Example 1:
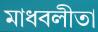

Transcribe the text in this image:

মাধবলীতা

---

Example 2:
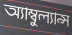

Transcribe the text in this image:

অ্যাম্বুল্যান্স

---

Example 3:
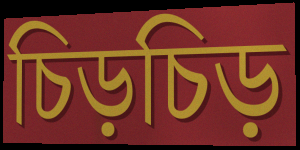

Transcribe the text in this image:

চিড়চিড়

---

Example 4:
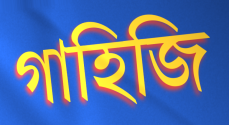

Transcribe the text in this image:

গাহিজি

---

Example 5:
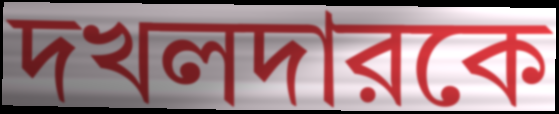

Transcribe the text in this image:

দখলদারকে